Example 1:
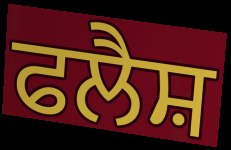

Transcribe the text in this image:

ਫਲੈਸ਼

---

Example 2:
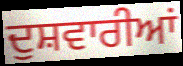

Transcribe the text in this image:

ਦੁਸ਼ਵਾਰੀਆਂ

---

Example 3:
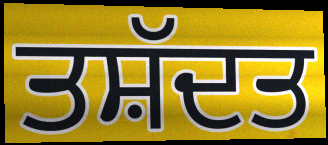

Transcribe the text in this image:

ਤਸ਼ੱਦਤ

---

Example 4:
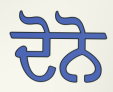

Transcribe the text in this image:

ਦੋਨੋ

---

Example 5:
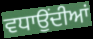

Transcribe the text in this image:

ਵਧਾਉਂਦੀਆਂ